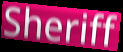
Sheriff